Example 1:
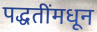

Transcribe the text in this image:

पद्धतींमधून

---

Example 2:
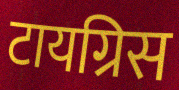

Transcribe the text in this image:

टायग्रिस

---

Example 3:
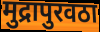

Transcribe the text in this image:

मुद्रापुरवठा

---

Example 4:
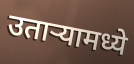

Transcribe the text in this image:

उतार्‍यामध्ये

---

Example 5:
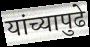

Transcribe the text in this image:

यांच्यापुढे